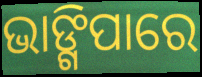
ଭାଙ୍ଗିପାରେ